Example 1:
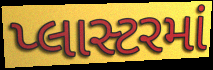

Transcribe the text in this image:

પ્લાસ્ટરમાં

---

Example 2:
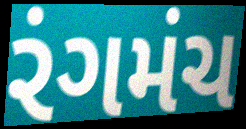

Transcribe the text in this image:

રંગમંચ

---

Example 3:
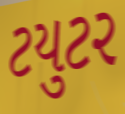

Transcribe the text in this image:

ટયુટર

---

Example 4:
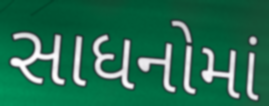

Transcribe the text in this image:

સાધનોમાં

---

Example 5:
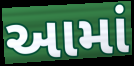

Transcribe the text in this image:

આમાં